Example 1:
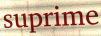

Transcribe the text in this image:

suprime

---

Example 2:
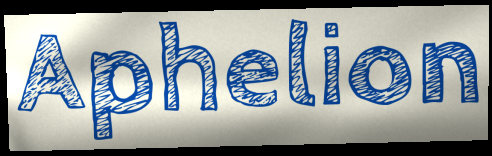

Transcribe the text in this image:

Aphelion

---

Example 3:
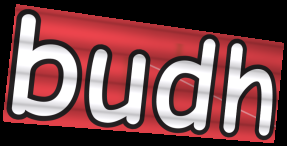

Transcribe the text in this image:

budh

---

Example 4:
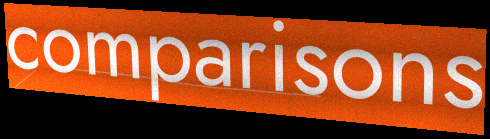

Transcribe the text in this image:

comparisons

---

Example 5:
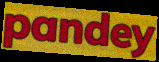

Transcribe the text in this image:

pandey